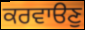
ਕਰਵਾੳਣੁ